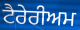
ਟੈਰੇਰੀਅਮ